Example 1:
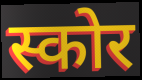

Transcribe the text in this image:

स्कोर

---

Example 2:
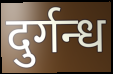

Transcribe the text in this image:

दुर्गन्‍ध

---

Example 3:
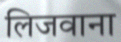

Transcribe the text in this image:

लिजवाना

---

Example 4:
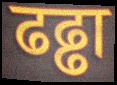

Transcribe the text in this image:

ढढ्ढा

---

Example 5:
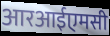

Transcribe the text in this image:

आरआईएमसी